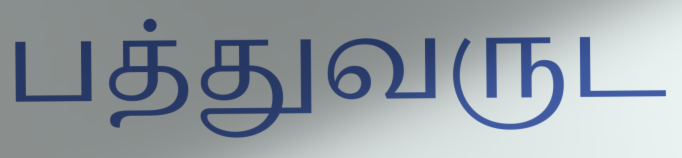
பத்துவருட